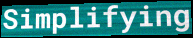
Simplifying